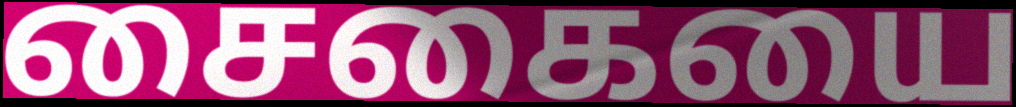
சைகையை